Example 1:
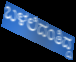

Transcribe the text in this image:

ಬಳಲಿದಂತಿದ್ದ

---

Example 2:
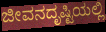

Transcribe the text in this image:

ಜೀವನದೃಷ್ಟಿಯಲ್ಲಿ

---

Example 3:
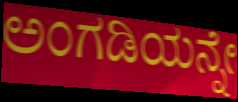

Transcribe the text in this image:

ಅಂಗಡಿಯನ್ನೇ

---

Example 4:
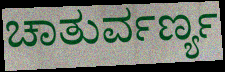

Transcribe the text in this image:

ಚಾತುರ್ವರ್ಣ್ಯ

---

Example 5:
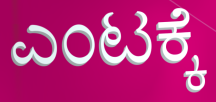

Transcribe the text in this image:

ಎಂಟಕ್ಕೆ